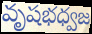
వృషభధ్వజ